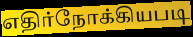
எதிர்நோக்கியபடி